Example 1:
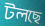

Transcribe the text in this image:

টলছে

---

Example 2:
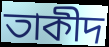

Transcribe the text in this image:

তাকীদ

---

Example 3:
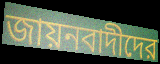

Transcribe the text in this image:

জায়নবাদীদের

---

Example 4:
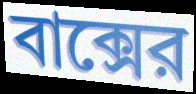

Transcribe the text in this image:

বাক্সের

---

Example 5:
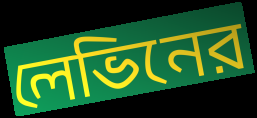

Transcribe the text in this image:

লেভিনের